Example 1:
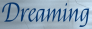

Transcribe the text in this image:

Dreaming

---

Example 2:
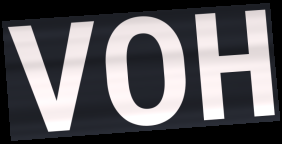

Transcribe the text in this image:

VOH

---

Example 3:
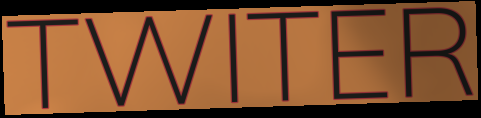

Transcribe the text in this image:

TWITER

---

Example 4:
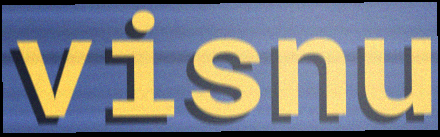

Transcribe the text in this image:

visnu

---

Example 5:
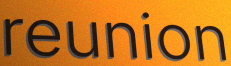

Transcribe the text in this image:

reunion